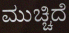
ಮುಚ್ಚಿದೆ